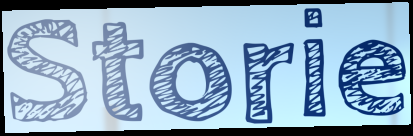
Storie